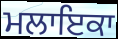
ਮਲਾਇਕਾ